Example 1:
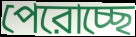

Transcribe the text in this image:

পেরোচ্ছে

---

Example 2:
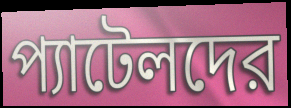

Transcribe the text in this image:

প্যাটেলদের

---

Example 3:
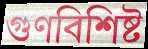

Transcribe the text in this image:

গুণবিশিষ্ট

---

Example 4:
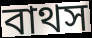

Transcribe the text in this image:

বাথস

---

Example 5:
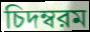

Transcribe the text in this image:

চিদম্বরম